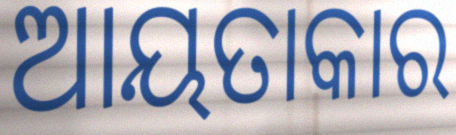
ଆୟତାକାର